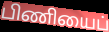
பிணியைப்